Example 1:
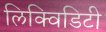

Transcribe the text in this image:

लिक्विडिटी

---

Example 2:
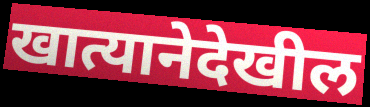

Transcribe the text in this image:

खात्यानेदेखील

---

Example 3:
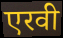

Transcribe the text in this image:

एरवी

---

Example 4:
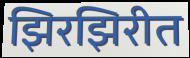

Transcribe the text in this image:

झिरझिरीत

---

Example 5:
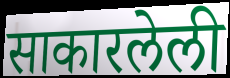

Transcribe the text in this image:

साकारलेली